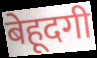
बेहूदगी